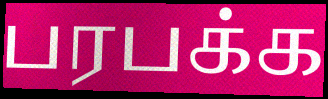
பரபக்க